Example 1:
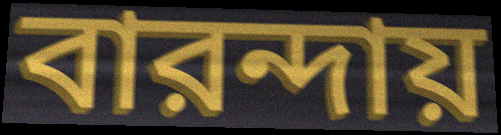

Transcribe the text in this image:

বারন্দায়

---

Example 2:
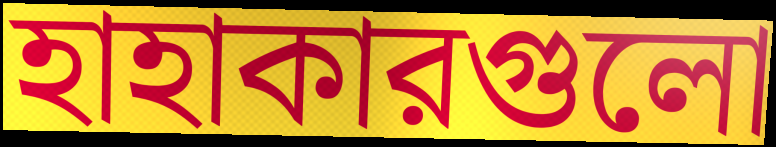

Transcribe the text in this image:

হাহাকারগুলো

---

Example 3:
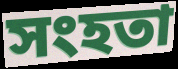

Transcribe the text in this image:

সংহতা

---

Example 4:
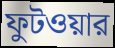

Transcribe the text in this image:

ফুটওয়ার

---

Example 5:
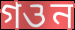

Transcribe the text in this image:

গওন